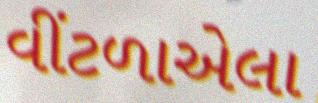
વીંટળાએલા